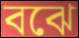
বঝে